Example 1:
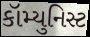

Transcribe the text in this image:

કૉમ્યુનિસ્ટ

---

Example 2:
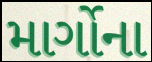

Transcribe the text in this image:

માર્ગોના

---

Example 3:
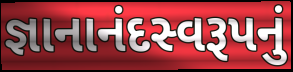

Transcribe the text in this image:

જ્ઞાનાનંદસ્વરૂપનું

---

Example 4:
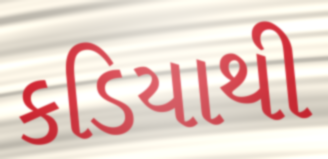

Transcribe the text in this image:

કડિયાથી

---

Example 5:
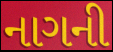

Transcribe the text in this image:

નાગની